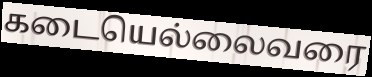
கடையெல்லைவரை